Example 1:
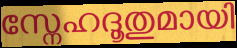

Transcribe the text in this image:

സ്നേഹദൂതുമായി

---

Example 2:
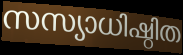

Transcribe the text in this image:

സസ്യാധിഷ്ഠിത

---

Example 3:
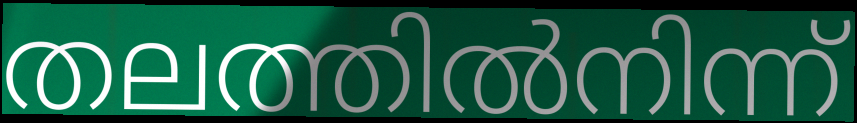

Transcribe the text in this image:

തലത്തിൽനിന്ന്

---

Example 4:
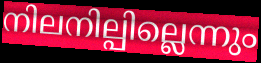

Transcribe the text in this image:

നിലനില്പില്ലെന്നും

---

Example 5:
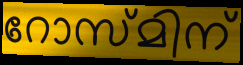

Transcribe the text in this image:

റോസ്മിന്